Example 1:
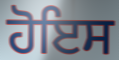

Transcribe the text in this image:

ਹੋਇਸ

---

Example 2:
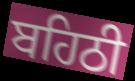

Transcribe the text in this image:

ਬਹਿਠੀ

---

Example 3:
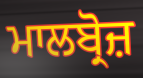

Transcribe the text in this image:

ਮਾਲਬ੍ਰੋਜ਼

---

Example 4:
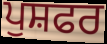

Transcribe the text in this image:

ਪੁਸ਼ਫਰ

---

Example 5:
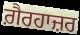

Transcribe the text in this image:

ਗ਼ੈਰਹਾਜ਼ਰ